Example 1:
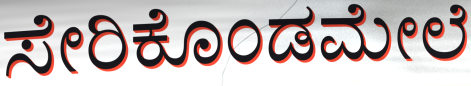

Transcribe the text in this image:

ಸೇರಿಕೊಂಡಮೇಲೆ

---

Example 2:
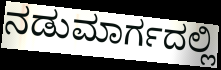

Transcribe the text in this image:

ನಡುಮಾರ್ಗದಲ್ಲಿ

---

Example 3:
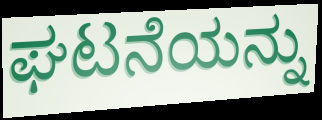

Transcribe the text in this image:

ಘಟನೆಯನ್ನು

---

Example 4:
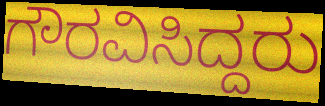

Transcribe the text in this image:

ಗೌರವಿಸಿದ್ದರು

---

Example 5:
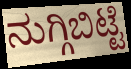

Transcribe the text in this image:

ನುಗ್ಗಿಬಿಟ್ಟೆ